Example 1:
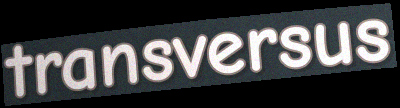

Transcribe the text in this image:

transversus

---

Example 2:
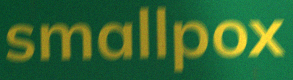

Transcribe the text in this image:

smallpox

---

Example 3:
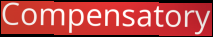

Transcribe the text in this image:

Compensatory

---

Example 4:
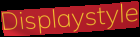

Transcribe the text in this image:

Displaystyle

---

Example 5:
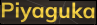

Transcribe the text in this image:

Piyaguka